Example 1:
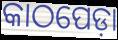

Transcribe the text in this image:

କାଠପେଡ଼ା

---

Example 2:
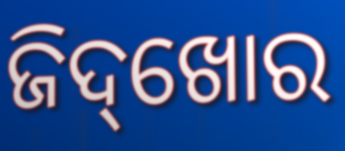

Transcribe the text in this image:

ଜିଦ୍‌ଖୋର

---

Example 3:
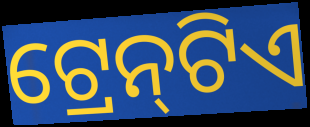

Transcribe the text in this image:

ଟ୍ରେନ୍‌ଟିଏ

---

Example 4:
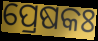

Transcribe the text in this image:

ପ୍ରେଷକଃ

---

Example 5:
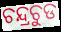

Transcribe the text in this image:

ଚନ୍ଦ୍ରଚୁଡ